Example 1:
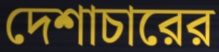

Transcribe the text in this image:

দেশাচারের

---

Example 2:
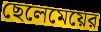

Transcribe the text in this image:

ছেলেমেয়ের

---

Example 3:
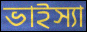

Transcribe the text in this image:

ভাইস্যা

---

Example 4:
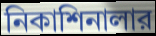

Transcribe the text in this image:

নিকাশিনালার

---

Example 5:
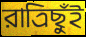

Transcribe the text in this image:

রাত্রিছুঁই